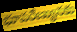
భూవరేణ్యునకు